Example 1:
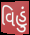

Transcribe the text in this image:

વિહું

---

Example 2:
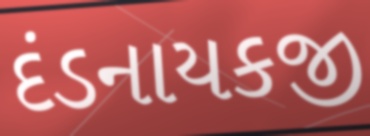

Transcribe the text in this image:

દંડનાયકજી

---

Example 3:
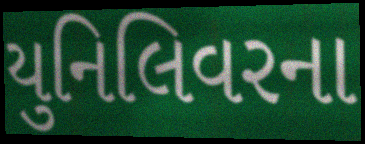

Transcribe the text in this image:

યુનિલિવરના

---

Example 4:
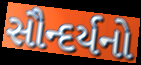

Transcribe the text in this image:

સૌન્દર્યનો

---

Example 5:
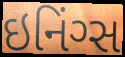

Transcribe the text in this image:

ઇનિંગ્સ